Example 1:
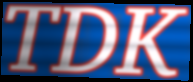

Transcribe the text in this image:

TDK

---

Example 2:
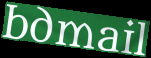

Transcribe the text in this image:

bdmail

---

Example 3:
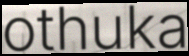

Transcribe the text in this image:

othuka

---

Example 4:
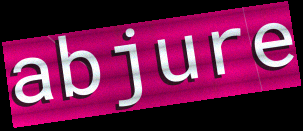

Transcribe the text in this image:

abjure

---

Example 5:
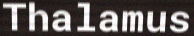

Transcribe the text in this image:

Thalamus